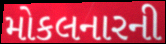
મોકલનારની